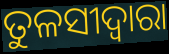
ତୁଳସୀଦ୍ବାରା